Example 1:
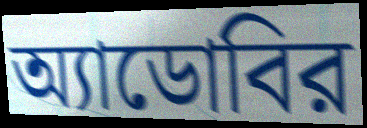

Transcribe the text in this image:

অ্যাডোবির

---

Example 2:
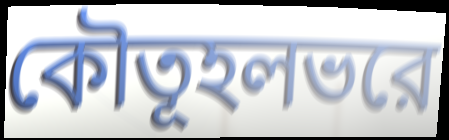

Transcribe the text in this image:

কৌতূহলভরে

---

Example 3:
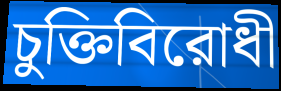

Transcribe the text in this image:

চুক্তিবিরোধী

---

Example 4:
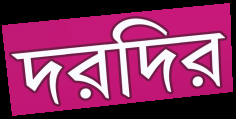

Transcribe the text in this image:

দরদির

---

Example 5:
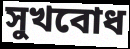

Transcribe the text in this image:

সুখবোধ